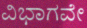
ವಿಭಾಗವೇ